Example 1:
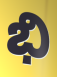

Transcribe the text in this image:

భి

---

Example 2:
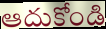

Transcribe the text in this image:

ఆదుకోండి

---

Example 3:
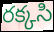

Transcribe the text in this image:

రక్కసి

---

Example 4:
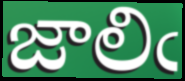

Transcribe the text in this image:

జాలిఁ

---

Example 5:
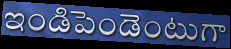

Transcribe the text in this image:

ఇండిపెండెంటుగా